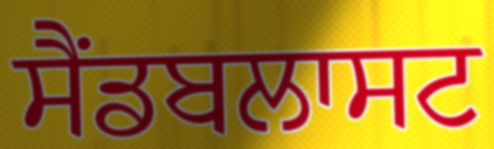
ਸੈਂਡਬਲਾਸਟ